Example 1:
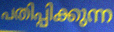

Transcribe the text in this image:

പതിപ്പിക്കുന്ന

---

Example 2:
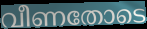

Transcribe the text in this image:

വീണതോടെ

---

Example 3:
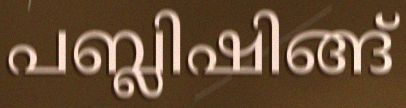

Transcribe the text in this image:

പബ്ലിഷിങ്ങ്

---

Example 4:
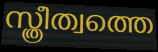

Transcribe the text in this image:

സ്ത്രീത്വത്തെ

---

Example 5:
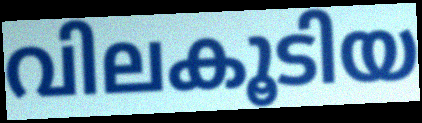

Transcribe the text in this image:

വിലകൂടിയ